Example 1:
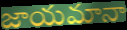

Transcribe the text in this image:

జాయమానా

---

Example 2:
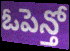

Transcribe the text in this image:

ఓపెన్తో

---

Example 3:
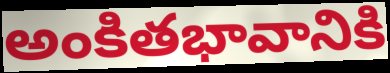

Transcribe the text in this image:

అంకితభావానికి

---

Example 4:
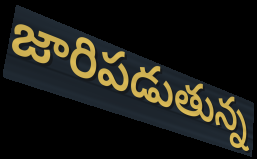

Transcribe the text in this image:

జారిపడుతున్న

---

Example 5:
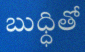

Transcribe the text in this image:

బుధ్ధితో